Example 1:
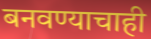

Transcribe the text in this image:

बनवण्याचाही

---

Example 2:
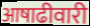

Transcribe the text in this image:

आषाढीवारी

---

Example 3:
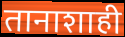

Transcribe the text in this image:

तानाशाही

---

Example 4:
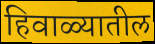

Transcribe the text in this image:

हिवाळ्यातील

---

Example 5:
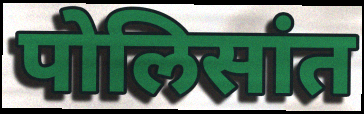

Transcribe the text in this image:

पोलिसांत